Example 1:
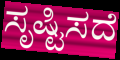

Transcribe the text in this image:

ಸೃಷ್ಟಿಸದೆ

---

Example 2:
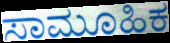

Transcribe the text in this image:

ಸಾಮೂಹಿಕ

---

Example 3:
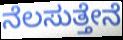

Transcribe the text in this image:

ನೆಲಸುತ್ತೇನೆ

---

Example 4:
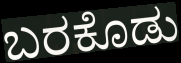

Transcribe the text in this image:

ಬರಕೊಡು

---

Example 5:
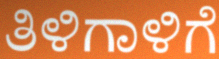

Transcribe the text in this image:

ತಿಳಿಗಾಳಿಗೆ